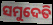
ସମୁଦେତି